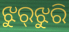
ଝୁର୍‌ଝୁରି